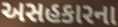
અસહકારના